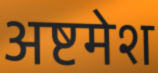
अष्टमेश